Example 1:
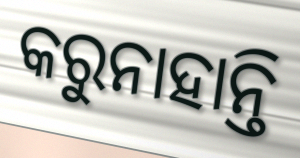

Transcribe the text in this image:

କରୁନାହାନ୍ତି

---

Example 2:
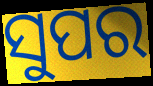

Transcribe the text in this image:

ସୁପର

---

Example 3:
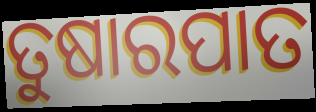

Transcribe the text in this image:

ତୁଷାରପାତ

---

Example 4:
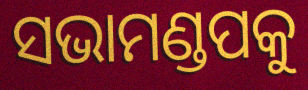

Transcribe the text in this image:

ସଭାମଣ୍ଡପକୁ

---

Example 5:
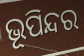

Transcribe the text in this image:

ଭୂପିନ୍ଦର